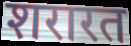
शरारत